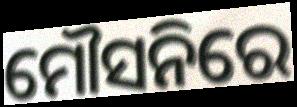
ମୌସନିରେ